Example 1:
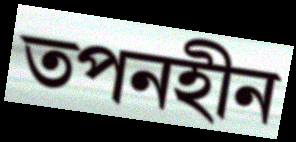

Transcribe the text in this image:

তপনহীন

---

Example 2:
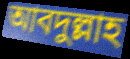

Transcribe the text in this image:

আবদুল্লাহ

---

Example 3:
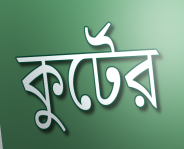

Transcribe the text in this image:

কুর্টের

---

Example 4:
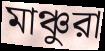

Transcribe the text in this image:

মাঞ্চুরা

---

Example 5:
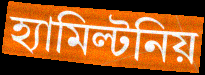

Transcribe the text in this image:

হ্যামিল্টনিয়